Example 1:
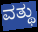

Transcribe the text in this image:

ವತ್ಥು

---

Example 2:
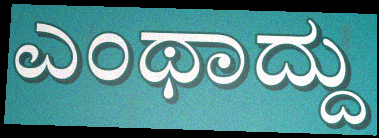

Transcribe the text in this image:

ಎಂಥಾದ್ದು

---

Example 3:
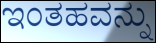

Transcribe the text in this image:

ಇಂತಹವನ್ನು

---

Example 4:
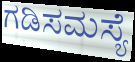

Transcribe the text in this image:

ಗಡಿಸಮಸ್ಯೆ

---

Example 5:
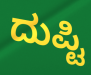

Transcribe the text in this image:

ದುಪ್ಟಿ